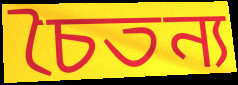
চৈতন্য